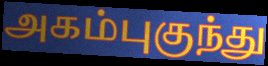
அகம்புகுந்து